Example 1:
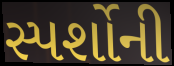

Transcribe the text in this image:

સ્પર્શોની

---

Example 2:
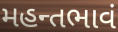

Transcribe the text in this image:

મહન્તભાવં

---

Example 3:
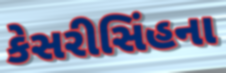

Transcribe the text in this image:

કેસરીસિંહના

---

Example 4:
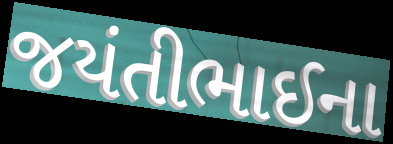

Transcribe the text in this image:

જયંતીભાઈના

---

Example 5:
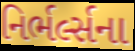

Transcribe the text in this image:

નિર્ભર્લ્સના